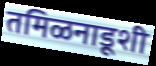
तमिळनाडूशी